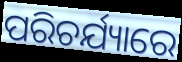
ପରିଚର୍ଯ୍ୟାରେ